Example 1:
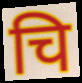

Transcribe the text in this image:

चि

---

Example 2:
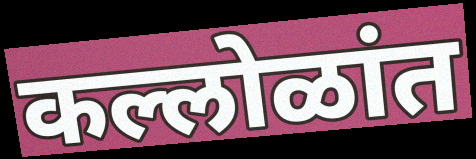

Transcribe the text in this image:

कल्लोळांत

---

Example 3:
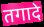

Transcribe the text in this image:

तगादे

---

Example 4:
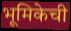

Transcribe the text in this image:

भूमिकेची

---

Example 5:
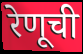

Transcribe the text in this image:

रेणूची